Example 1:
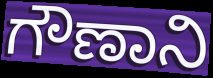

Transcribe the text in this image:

ಗೌಣಾನಿ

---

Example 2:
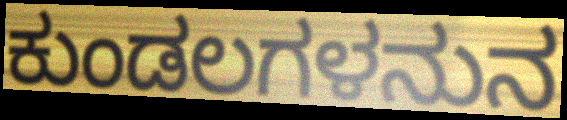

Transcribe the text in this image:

ಕುಂಡಲಗಳನುನ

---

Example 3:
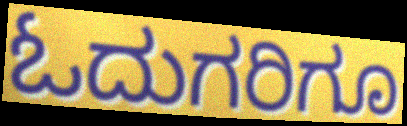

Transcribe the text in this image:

ಓದುಗರಿಗೂ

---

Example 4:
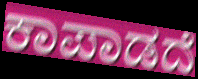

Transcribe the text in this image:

ಕಾಪಾಡದೆ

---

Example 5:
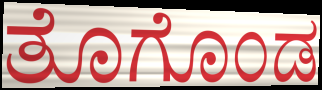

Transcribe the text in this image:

ತೊಗೊಂಡ